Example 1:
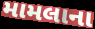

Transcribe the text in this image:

મામલાના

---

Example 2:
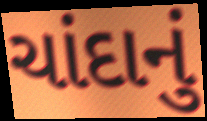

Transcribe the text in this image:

ચાંદાનું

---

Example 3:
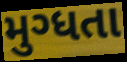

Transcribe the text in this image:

મુગ્ધતા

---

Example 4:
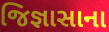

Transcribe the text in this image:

જિજ્ઞાસાના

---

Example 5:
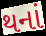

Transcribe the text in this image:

થનાં